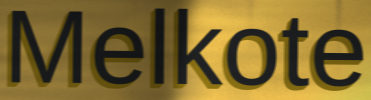
Melkote